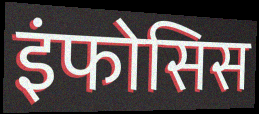
इंफोसिस